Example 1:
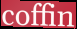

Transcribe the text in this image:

coffin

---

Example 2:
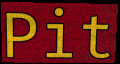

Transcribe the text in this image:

Pit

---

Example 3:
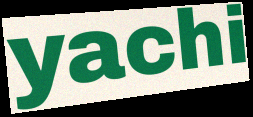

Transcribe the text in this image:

yachi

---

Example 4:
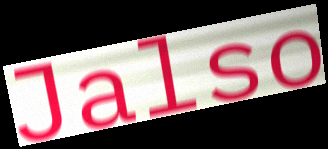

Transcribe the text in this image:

Jalso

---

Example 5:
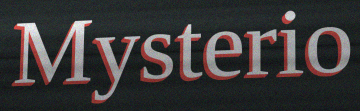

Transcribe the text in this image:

Mysterio